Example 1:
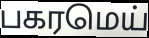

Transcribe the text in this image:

பகரமெய்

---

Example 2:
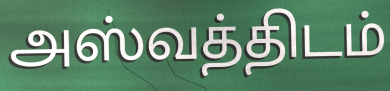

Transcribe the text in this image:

அஸ்வத்திடம்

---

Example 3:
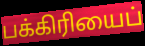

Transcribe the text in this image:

பக்கிரியைப்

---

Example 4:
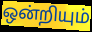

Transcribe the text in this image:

ஒன்றியும்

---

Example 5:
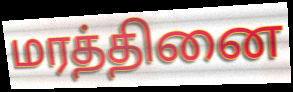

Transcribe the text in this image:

மரத்தினை